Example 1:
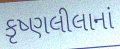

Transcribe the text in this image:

કૃષ્ણલીલાનાં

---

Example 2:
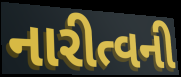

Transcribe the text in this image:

નારીત્વની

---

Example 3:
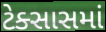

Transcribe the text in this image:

ટેક્સાસમાં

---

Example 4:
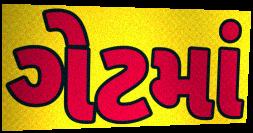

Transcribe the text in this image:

ગેટમાં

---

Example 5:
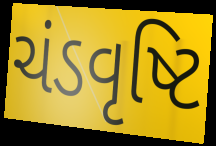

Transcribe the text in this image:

ચંડવૃષ્ટિ